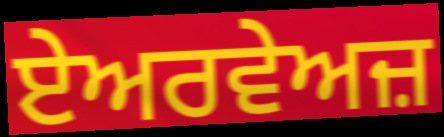
ਏਅਰਵੇਅਜ਼